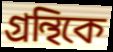
গ্রন্থিকে